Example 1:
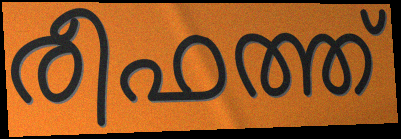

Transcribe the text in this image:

രീഫത്ത്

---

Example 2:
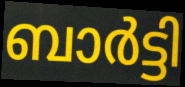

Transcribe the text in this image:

ബാർട്ടി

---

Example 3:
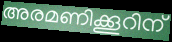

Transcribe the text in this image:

അരമണിക്കൂറിന്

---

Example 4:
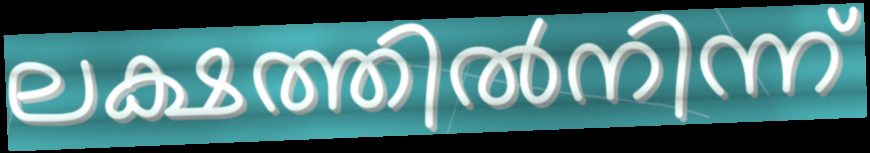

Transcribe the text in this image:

ലക്ഷത്തിൽനിന്ന്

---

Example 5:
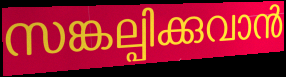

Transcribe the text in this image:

സങ്കല്പിക്കുവാൻ